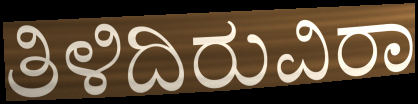
ತಿಳಿದಿರುವಿರಾ